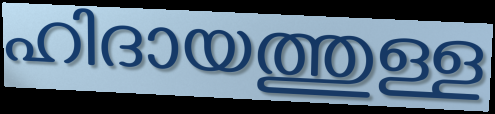
ഹിദായത്തുള്ള